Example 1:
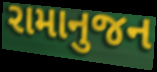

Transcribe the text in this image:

રામાનુજન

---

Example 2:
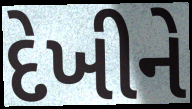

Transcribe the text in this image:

દેખીને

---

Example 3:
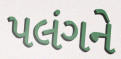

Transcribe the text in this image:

પલંગને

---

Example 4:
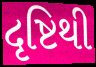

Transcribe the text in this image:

દૃષ્ટિથી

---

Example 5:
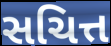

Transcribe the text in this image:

સચિત્ત